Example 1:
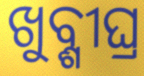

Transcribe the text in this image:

ଖୁବ୍ଶୀଘ୍ର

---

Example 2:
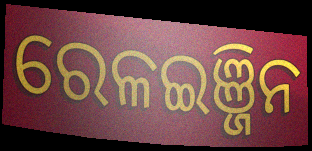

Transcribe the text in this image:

ରେଳଇଞ୍ଜିନ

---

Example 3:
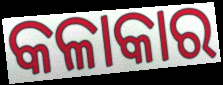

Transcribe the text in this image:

କଳାକାର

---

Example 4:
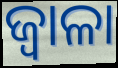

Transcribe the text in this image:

ଜ୍ୱାଳା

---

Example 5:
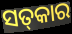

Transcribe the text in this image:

ସତ୍‌କାର